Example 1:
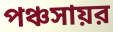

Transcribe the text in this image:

পঞ্চসায়র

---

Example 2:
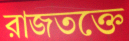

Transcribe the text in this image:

রাজতক্তে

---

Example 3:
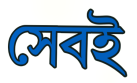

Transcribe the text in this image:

সেবই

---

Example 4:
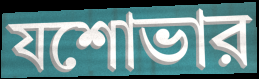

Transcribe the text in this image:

যশোভার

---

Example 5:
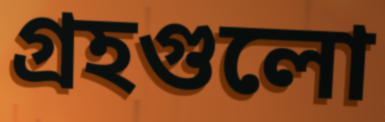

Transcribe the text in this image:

গ্রহগুলো